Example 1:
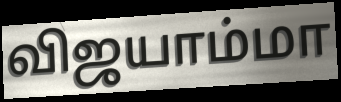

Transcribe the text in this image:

விஜயாம்மா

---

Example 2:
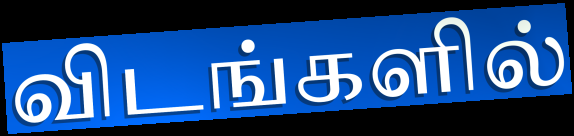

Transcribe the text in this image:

விடங்களில்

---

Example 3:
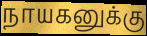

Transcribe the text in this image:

நாயகனுக்கு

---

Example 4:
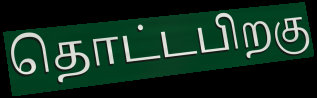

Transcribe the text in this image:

தொட்டபிறகு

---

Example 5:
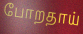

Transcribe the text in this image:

போறதாய்